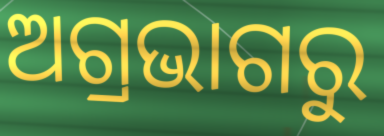
ଅଗ୍ରଭାଗରୁ